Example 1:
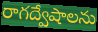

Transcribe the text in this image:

రాగద్వేషాలను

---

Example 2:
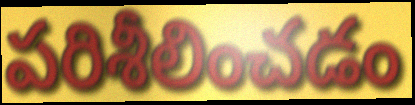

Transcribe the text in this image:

పరిశీలించడం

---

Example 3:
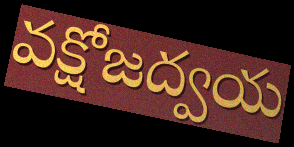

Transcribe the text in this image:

వక్షోజద్వయ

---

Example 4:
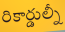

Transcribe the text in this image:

రికార్డుల్నీ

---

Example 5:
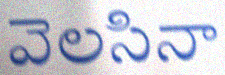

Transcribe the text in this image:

వెలసినా